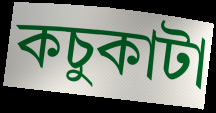
কচুকাটা